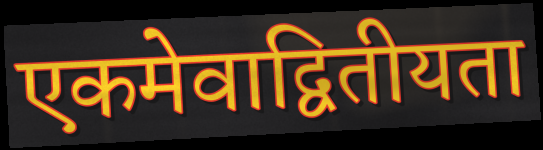
एकमेवाद्वितीयता